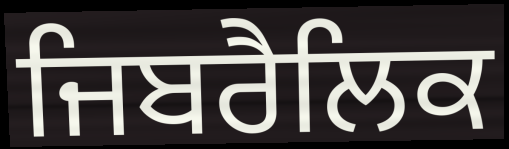
ਜਿਬਰੈਲਿਕ